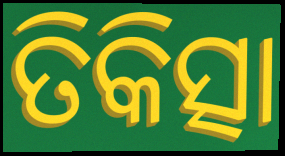
ତିକିତ୍ସା